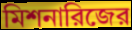
মিশনারিজের